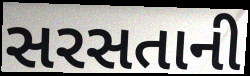
સરસતાની